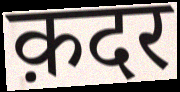
क़दर